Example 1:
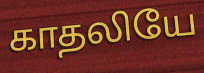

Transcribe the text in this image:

காதலியே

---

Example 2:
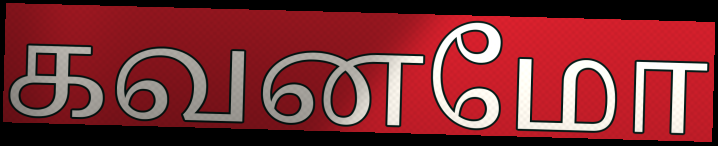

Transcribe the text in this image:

கவனமோ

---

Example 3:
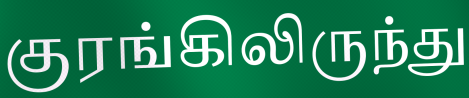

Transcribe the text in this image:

குரங்கிலிருந்து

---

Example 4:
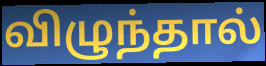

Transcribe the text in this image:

விழுந்தால்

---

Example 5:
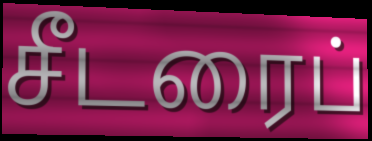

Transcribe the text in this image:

சீடரைப்